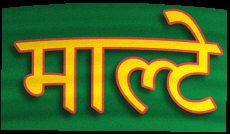
माल्टे